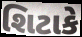
શિટાકે